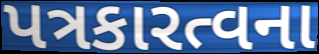
પત્રકારત્વના